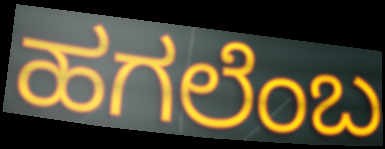
ಹಗಲೆಂಬ